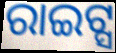
ରାଇଟ୍ସ